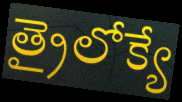
త్రైలోక్యే